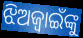
ଝିଅଜ୍ୱାଇଁଙ୍କୁ